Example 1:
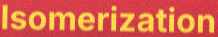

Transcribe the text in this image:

Isomerization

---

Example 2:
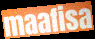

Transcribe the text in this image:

maafisa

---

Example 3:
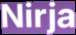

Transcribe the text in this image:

Nirja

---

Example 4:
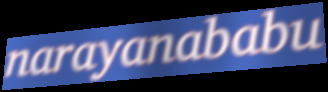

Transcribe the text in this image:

narayanababu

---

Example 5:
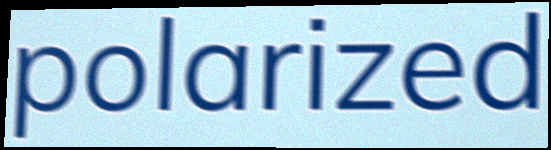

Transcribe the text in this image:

polarized